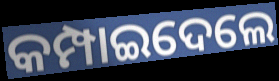
କମ୍ପାଇଦେଲେ